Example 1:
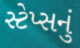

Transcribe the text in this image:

સ્ટેપ્સનું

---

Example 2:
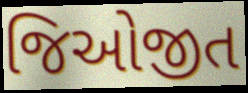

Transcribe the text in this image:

જિઓજીત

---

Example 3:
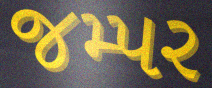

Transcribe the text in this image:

જમ્પર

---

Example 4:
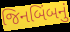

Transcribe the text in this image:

જિનબિંબનું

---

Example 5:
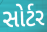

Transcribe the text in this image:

સોર્ટર